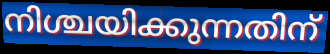
നിശ്ചയിക്കുന്നതിന്